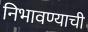
निभावण्याची